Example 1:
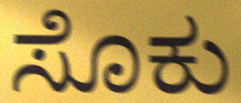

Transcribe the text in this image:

ಸೊಕು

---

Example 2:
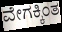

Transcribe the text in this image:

ವೇಗಕ್ಕಿಂತ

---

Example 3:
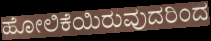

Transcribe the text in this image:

ಹೋಲಿಕೆಯಿರುವುದರಿಂದ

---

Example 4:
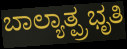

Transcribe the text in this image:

ಬಾಲ್ಯಾತ್ಪ್ರಭೃತಿ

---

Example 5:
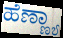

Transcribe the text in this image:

ಹೆಣ್ಣ್ಯಾ